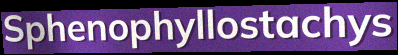
Sphenophyllostachys